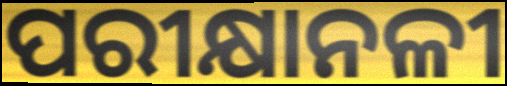
ପରୀକ୍ଷାନଳୀ